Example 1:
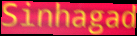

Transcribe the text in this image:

Sinhagad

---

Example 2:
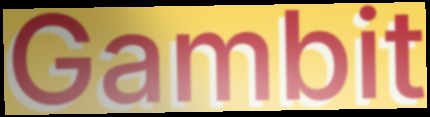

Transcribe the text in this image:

Gambit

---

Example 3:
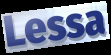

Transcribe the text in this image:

Lessa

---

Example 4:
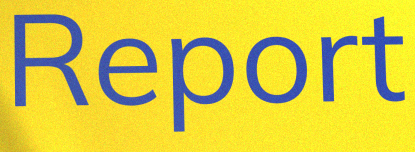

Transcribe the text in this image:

Report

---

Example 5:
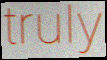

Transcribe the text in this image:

truly